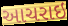
આચરાઇ